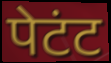
पेटंट